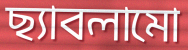
ছ্যাবলামো